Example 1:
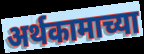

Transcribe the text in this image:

अर्थकामाच्या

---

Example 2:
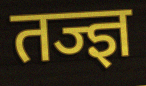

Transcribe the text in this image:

तज्ज्ञ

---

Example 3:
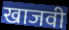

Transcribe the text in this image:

खाजवी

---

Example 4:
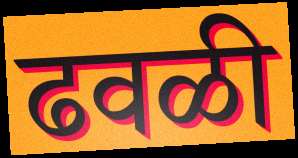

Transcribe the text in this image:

ढवळी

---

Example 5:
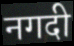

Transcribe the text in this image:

नगदी